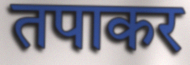
तपाकर